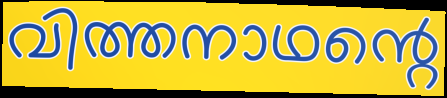
വിത്തനാഥന്റെ